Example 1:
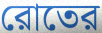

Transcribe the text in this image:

রোতের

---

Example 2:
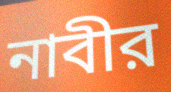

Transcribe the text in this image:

নাবীর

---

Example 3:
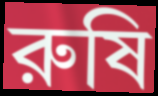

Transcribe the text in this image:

রুষি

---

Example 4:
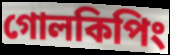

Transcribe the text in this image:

গোলকিপিং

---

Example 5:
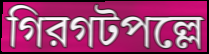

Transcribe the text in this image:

গিরগটপল্লে